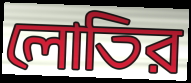
লোতির